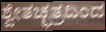
ಶ್ವೇತಚ್ಛತ್ರದಿಂದ